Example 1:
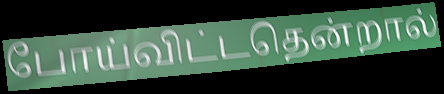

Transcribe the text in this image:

போய்விட்டதென்றால்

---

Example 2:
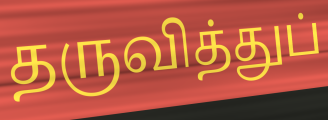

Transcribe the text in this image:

தருவித்துப்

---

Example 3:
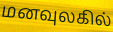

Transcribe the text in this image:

மனவுலகில்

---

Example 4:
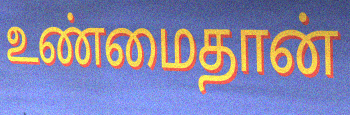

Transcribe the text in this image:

உண்மைதான்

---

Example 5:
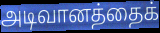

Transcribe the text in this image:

அடிவானத்தைக்